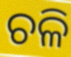
ଚଳି